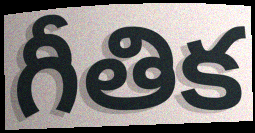
గీతిక